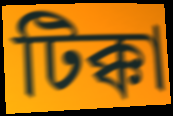
টিক্কা